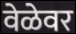
वेळेवर